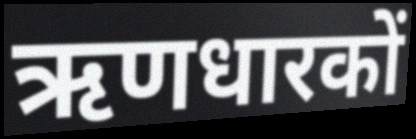
ऋणधारकों